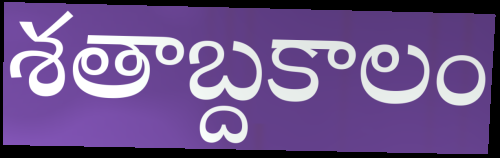
శతాబ్దకాలం